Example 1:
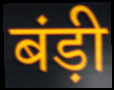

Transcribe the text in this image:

बंड़ी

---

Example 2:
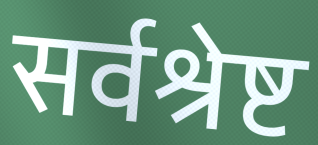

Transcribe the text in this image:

सर्वश्रेष्ट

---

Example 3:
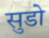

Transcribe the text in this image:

सुडो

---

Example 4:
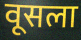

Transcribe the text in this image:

वूसला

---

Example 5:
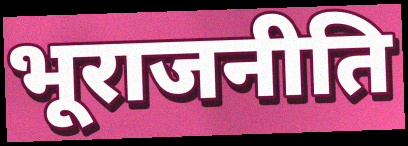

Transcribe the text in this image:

भूराजनीति